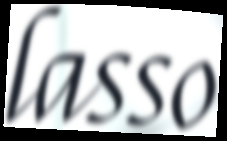
lasso